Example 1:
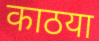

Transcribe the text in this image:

काठया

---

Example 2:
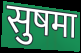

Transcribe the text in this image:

सुषमा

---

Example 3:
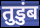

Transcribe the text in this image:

तुडुंब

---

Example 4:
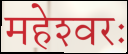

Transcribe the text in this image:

महेश्वरः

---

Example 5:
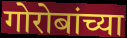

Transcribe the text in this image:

गोरोबांच्या